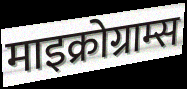
माइक्रोग्राम्स